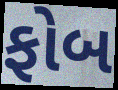
ફોબ